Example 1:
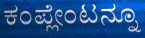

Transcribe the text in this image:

ಕಂಪ್ಲೇಂಟನ್ನೂ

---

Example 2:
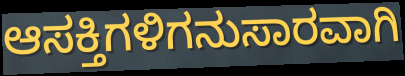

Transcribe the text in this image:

ಆಸಕ್ತಿಗಳಿಗನುಸಾರವಾಗಿ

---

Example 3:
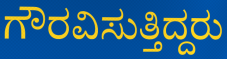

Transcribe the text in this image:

ಗೌರವಿಸುತ್ತಿದ್ದರು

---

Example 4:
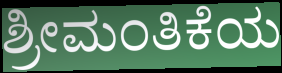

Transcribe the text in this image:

ಶ್ರೀಮಂತಿಕೆಯ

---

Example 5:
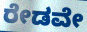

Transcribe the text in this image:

ರೇಡವೇ